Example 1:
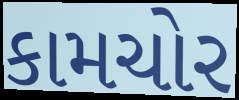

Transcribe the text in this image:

કામચોર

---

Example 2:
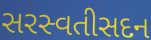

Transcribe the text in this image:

સરસ્વતીસદન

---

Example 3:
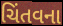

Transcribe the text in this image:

ચિંતવના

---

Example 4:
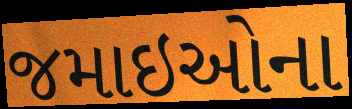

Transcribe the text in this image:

જમાઇઓના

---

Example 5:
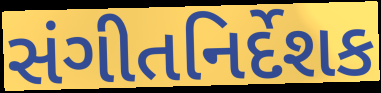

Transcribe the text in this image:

સંગીતનિર્દેશક